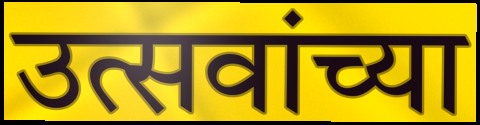
उत्सवांच्या